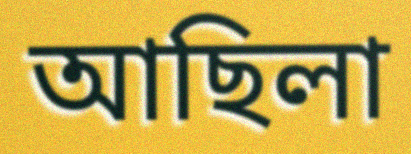
আছিলা